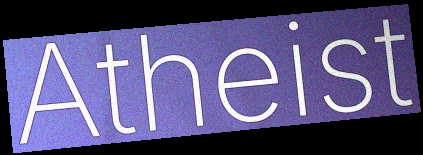
Atheist